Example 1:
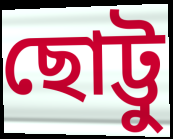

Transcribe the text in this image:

ছোট্টু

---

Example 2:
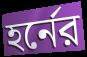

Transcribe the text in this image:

হর্নের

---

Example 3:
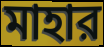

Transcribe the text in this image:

মাহার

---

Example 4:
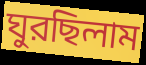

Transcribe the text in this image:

ঘুরছিলাম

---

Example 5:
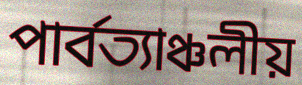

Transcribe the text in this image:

পার্বত্যাঞ্চলীয়